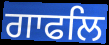
ਗਾਫਲਿ